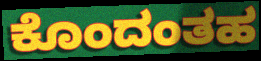
ಕೊಂದಂತಹ